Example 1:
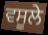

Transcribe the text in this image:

ਵਸੂਲੇ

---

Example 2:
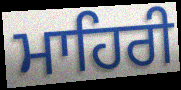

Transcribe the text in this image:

ਮਾਹਿਰੀ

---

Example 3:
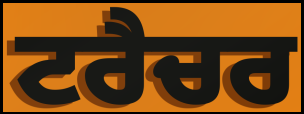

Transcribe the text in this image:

ਟਰੈਚਰ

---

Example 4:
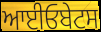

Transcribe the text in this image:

ਆਈਓਬੇਟਸ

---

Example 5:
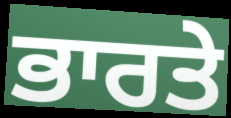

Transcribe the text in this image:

ਭਾਰਤੇ